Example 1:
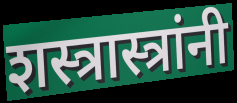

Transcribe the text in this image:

शस्त्रास्त्रांनी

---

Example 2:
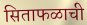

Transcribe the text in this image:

सिताफळाची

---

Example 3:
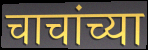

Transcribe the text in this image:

चाचांच्या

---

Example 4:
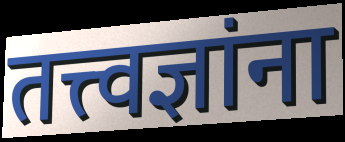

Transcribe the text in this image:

तत्त्वज्ञांना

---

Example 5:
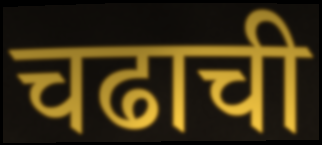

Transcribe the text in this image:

चढाची